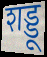
शड्डू